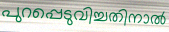
പുറപ്പെടുവിച്ചതിനാൽ